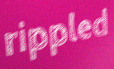
rippled